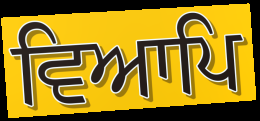
ਵਿਆਪਿ